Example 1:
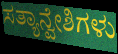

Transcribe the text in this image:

ಸತ್ಯಾನ್ವೇಶಿಗಳು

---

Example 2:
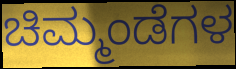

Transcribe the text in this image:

ಚಿಮ್ಮಂಡೆಗಳ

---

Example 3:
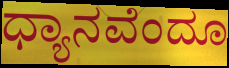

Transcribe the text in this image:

ಧ್ಯಾನವೆಂದೂ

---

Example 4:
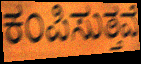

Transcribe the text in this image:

ಕಂಪಿಸುತ್ತವೆ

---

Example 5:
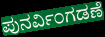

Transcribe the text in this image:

ಪುನರ್ವಿಂಗಡಣೆ